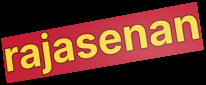
rajasenan